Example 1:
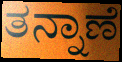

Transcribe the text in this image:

ತನ್ನಾಣೆ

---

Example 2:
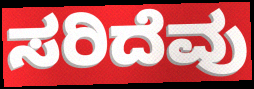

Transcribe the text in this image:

ಸರಿದೆವು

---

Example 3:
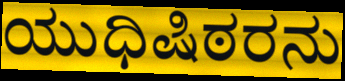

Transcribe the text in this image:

ಯುಧಿಷಿಠರನು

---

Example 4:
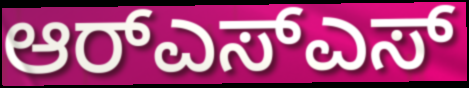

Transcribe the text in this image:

ಆರ್‌ಎಸ್ಎಸ್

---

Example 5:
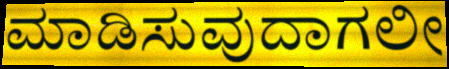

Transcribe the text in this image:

ಮಾಡಿಸುವುದಾಗಲೀ